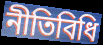
নীতিবিধি